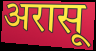
अरासू